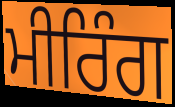
ਮੀਰਿੰਗ